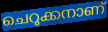
ചെറുക്കനാണ്